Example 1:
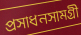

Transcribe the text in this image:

প্রসাধনসামগ্রী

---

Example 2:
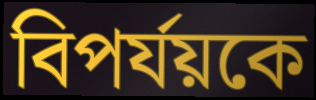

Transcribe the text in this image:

বিপর্যয়কে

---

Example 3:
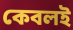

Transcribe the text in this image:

কেবলই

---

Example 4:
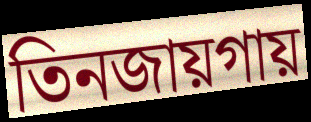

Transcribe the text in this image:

তিনজায়গায়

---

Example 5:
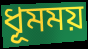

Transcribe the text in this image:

ধূমময়